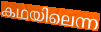
കഥയിലെന്ന